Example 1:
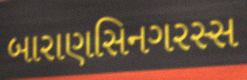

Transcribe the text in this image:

બારાણસિનગરસ્સ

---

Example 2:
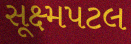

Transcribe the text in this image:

સૂક્ષ્મપટલ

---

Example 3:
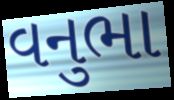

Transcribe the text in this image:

વનુભા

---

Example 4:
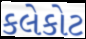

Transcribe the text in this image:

કલેકોટ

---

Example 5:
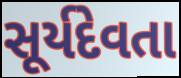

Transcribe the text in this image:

સૂર્યદેવતા